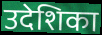
उदेशिका